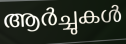
ആർച്ചുകൾ